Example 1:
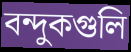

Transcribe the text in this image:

বন্দুকগুলি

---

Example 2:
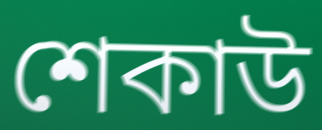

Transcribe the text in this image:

শেকাউ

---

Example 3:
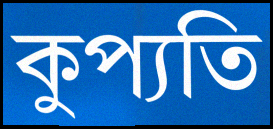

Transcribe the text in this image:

কুপ্যতি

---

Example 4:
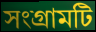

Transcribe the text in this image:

সংগ্রামটি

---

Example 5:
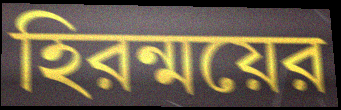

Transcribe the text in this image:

হিরন্ময়ের